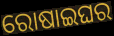
ରୋଷାଇଘର